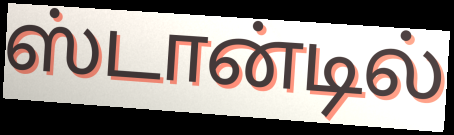
ஸ்டான்டில்